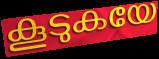
കൂടുകയേ